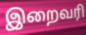
இறைவரி